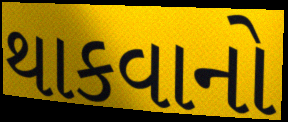
થાકવાનો